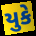
યુકે